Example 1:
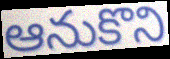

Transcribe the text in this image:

ఆనుకొని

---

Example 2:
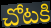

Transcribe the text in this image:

చోటకి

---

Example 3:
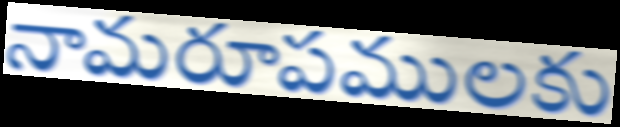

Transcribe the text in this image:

నామరూపములకు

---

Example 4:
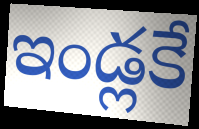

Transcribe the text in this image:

ఇండ్లకే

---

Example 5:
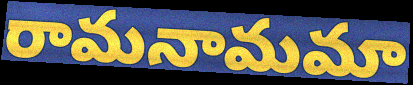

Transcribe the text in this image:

రామనామమా